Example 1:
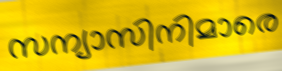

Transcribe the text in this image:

സന്യാസിനിമാരെ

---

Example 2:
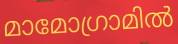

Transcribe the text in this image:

മാമോഗ്രാമിൽ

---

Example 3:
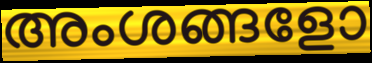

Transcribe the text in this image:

അംശങ്ങളോ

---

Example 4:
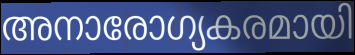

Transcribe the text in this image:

അനാരോഗ്യകരമായി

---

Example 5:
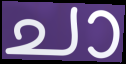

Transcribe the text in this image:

ചാ